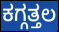
ಕಗ್ಗತ್ತಲ